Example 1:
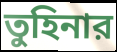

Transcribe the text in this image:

তুহিনার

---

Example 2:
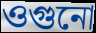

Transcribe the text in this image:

ওগুনো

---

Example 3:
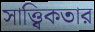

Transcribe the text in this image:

সাত্ত্বিকতার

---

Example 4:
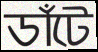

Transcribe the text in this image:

ডাঁটে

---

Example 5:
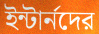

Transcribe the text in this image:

ইন্টার্নদের